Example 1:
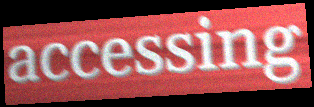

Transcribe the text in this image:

accessing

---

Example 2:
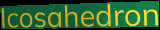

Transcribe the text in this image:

Icosahedron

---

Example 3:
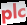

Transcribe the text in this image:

plc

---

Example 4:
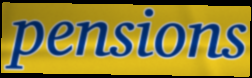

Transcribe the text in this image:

pensions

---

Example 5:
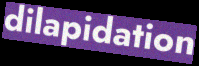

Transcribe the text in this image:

dilapidation